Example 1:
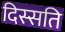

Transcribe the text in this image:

दिस्सति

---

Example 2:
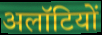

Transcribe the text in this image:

अलॉटियों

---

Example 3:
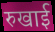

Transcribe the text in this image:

रुखाई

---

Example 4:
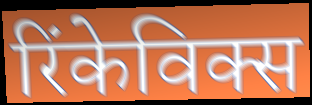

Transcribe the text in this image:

रिंकेविक्स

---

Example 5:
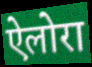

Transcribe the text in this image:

ऐलोरा